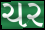
ચર